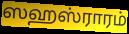
ஸஹஸ்ராரம்